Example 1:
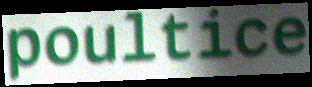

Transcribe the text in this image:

poultice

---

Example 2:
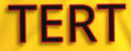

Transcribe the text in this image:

TERT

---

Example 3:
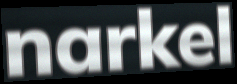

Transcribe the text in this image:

narkel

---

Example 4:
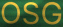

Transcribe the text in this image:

OSG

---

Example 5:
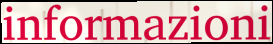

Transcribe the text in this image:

informazioni